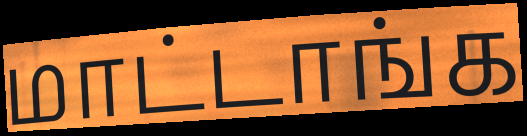
மாட்டாங்க